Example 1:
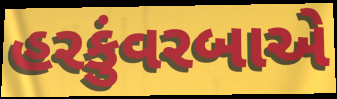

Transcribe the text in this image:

હરકુંવરબાએ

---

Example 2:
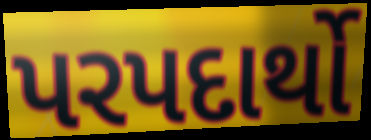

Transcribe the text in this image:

પરપદાર્થો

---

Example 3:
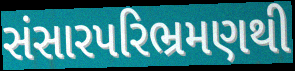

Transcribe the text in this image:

સંસારપરિભ્રમણથી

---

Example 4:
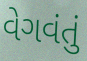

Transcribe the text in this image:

વેગવંતું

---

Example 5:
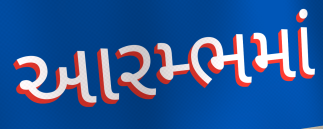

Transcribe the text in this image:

આરમ્ભમાં